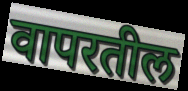
वापरतील